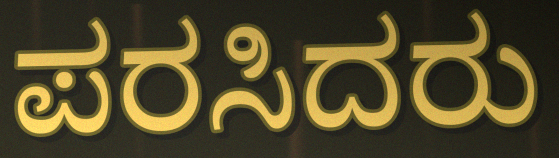
ಪರಸಿದರು